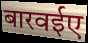
बारवईए